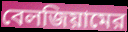
বেলজিয়ামের